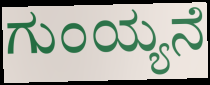
ಗುಂಯ್ಯನೆ